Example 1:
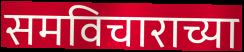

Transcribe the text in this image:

समविचाराच्या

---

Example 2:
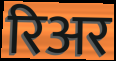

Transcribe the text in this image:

रिअर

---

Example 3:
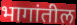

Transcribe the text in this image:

भागांतील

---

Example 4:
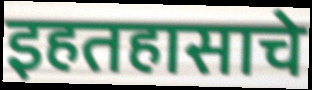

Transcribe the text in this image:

इहतहासाचे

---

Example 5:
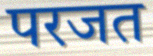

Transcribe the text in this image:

परजत